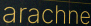
arachne